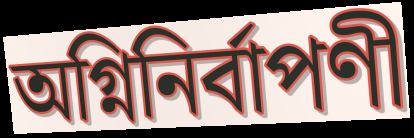
অগ্নিনির্বাপণী